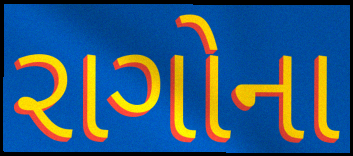
રાગોના